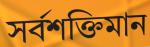
সর্বশক্তিমান